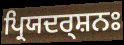
ਪ੍ਰਿਯਦਰ੍ਸ਼ਨਃ